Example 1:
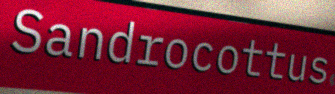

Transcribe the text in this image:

Sandrocottus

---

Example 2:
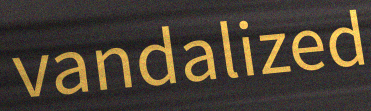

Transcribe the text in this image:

vandalized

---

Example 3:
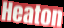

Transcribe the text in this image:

Heaton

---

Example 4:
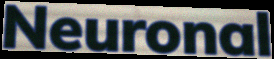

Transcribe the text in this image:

Neuronal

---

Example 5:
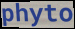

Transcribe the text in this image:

phyto